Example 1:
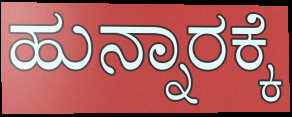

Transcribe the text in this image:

ಹುನ್ನಾರಕ್ಕೆ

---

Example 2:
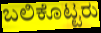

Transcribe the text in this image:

ಬಲಿಕೊಟ್ಟರು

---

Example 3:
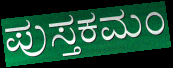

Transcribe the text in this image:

ಪುಸ್ತಕಮಂ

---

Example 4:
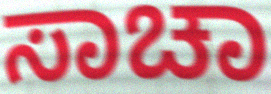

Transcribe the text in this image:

ಸಾಚಾ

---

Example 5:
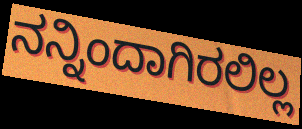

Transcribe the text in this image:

ನನ್ನಿಂದಾಗಿರಲಿಲ್ಲ